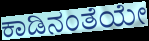
ಕಾಡಿನಂತೆಯೇ